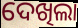
ଦେଖିଲା